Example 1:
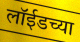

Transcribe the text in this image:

लॉईडच्या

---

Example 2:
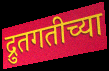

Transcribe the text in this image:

द्रुतगतीच्या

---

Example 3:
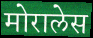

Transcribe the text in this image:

मोरालेस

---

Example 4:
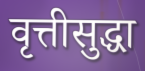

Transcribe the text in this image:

वृत्तीसुद्धा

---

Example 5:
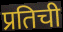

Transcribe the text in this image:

प्रतिची